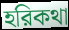
হরিকথা